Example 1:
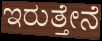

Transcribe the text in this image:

ಇರುತ್ತೇನೆ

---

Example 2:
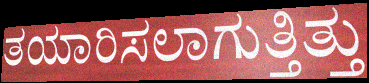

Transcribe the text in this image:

ತಯಾರಿಸಲಾಗುತ್ತಿತ್ತು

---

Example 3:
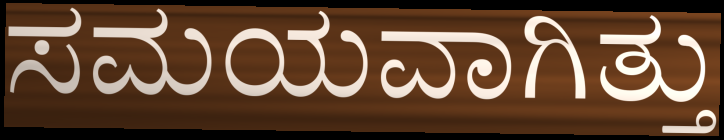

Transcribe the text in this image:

ಸಮಯವಾಗಿತ್ತು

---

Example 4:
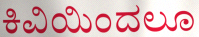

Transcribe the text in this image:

ಕಿವಿಯಿಂದಲೂ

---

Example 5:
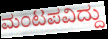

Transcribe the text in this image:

ಮಂಟಪವಿದ್ದು